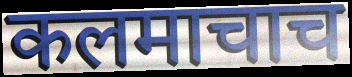
कलमाचाच